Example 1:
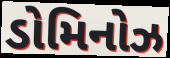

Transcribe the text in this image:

ડોમિનોઝ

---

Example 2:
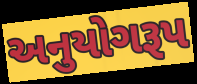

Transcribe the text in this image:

અનુયોગરૂપ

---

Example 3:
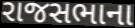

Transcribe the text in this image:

રાજસભાના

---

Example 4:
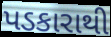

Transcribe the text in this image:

પડકારાથી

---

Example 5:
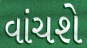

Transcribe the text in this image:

વાંચશે